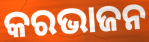
କରଭାଜନ